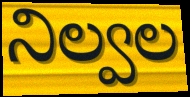
నిల్వల